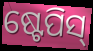
ଷ୍ଟେପିସ୍